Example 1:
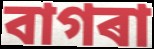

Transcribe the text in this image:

বাগৰা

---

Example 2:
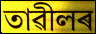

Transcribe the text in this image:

তাৱীলৰ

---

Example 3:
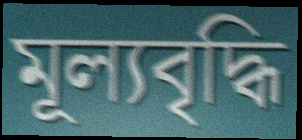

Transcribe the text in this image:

মূল্যবৃদ্ধি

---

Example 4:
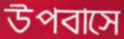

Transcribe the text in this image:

উপবাসে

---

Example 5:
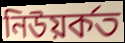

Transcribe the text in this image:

নিউয়ৰ্কত